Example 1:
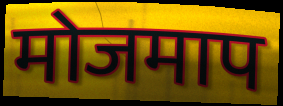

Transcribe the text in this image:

मोजमाप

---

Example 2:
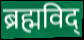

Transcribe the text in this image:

ब्रह्मविद्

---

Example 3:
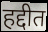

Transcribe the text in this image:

हद्दीत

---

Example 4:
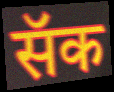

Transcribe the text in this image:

सॅक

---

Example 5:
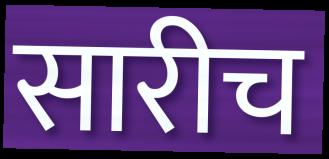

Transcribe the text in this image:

सारीच